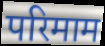
परिमाम